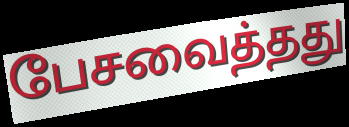
பேசவைத்தது